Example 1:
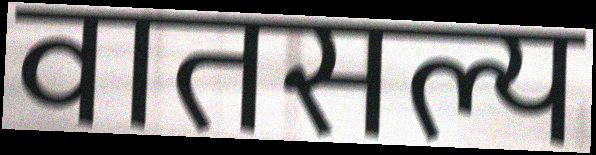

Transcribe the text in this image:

वातसल्य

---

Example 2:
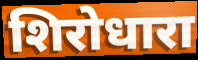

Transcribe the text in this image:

शिरोधारा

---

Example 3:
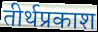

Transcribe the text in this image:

तीर्थप्रकाश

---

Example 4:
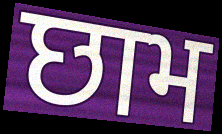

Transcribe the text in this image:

छाभ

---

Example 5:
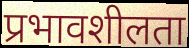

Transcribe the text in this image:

प्रभावशीलता